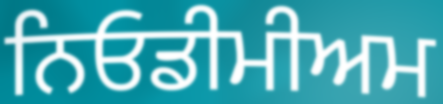
ਨਿਓਡੀਮੀਅਮ